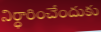
నిర్ధారించేందుకు